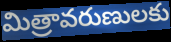
మిత్రావరుణులకు